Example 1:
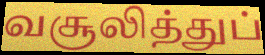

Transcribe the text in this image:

வசூலித்துப்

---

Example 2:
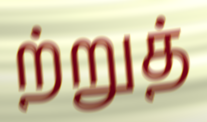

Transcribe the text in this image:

ற்றுத்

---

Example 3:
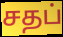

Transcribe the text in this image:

சதப்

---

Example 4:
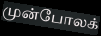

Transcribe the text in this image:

முன்போலக்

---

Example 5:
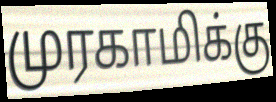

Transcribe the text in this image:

முரகாமிக்கு